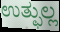
ಉತ್ಫುಲ್ಲ